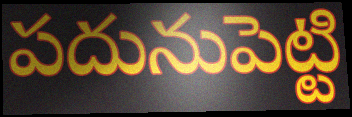
పదునుపెట్టి